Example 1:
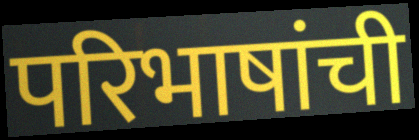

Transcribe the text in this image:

परिभाषांची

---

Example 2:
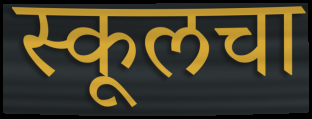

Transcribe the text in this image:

स्कूलचा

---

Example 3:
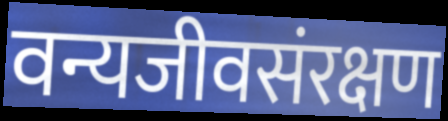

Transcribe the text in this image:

वन्यजीवसंरक्षण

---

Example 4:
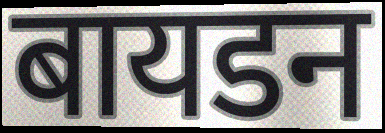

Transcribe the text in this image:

बायडन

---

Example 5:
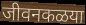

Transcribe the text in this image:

जीवनकळया